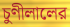
চুণীলালের